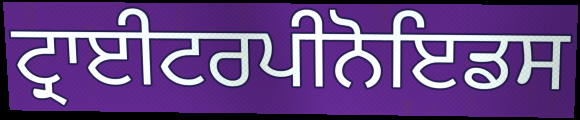
ਟ੍ਰਾਈਟਰਪੀਨੋਇਡਸ